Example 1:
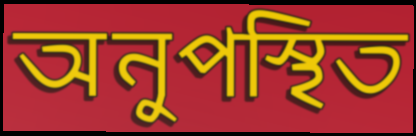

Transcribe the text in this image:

অনুপস্থিত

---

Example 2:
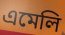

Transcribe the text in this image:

এমেলি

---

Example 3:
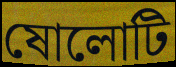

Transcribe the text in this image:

ষোলোটি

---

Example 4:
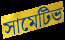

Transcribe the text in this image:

সামেটিভ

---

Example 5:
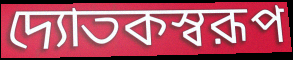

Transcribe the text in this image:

দ্যোতকস্বরূপ